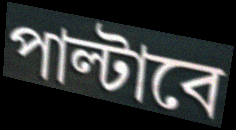
পাল্টাবে